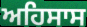
ਅਹਿਸਾਸ